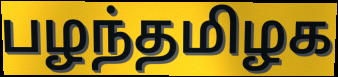
பழந்தமிழக